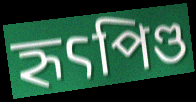
হৃৎপিণ্ড